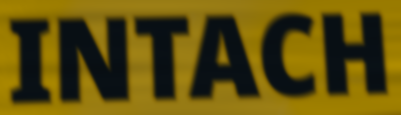
INTACH